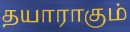
தயாராகும்